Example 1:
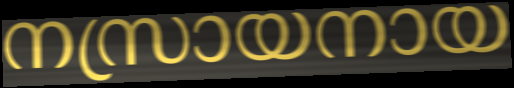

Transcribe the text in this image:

നസ്രായനായ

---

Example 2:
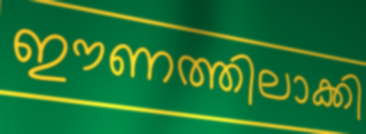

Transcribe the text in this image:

ഈണത്തിലാക്കി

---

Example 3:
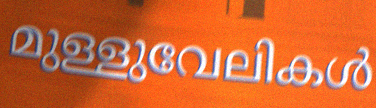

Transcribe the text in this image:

മുള്ളുവേലികൾ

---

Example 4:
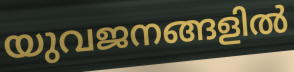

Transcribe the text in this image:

യുവജനങ്ങളിൽ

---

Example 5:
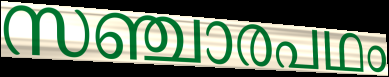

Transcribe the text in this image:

സഞ്ചാരപഥം